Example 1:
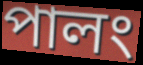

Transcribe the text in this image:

পালং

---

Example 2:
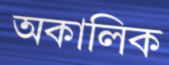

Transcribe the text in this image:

অকালিক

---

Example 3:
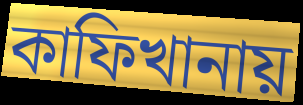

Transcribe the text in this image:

কাফিখানায়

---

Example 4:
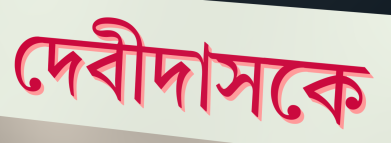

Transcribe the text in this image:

দেবীদাসকে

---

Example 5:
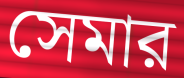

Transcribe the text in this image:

সেমার